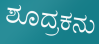
ಶೂದ್ರಕನು